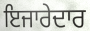
ਇਜਾਰੇਦਾਰ